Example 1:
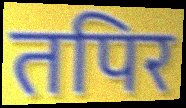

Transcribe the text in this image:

तपिर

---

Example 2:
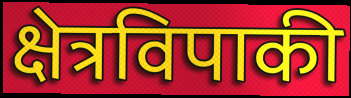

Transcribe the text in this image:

क्षेत्रविपाकी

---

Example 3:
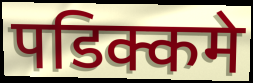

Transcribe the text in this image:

पडिक्कमे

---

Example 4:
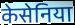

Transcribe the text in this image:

केसेनिया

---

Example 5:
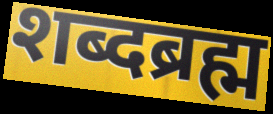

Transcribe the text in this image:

शब्दब्रह्म